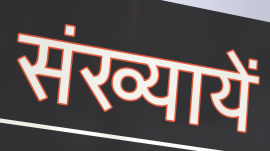
संख्यायें